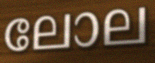
ലോല